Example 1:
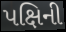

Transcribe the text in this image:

પક્ષિની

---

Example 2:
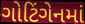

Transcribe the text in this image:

ગોટિંગેનમાં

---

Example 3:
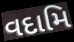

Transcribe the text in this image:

વદામિ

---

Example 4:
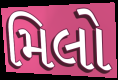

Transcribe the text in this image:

મિલો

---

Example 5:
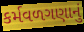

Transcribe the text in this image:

કર્મવળગણાનું